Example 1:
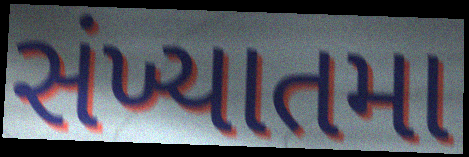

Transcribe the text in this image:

સંખ્યાતમા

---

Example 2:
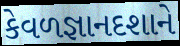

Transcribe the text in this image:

કેવળજ્ઞાનદશાને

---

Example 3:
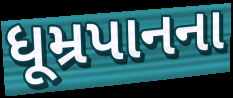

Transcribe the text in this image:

ધૂમ્રપાનના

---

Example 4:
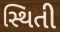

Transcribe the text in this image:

સ્થિતી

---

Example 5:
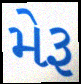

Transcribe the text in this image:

મેરૂ